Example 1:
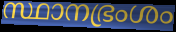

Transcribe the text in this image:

സ്ഥാനഭ്രംശം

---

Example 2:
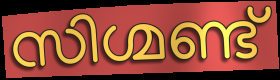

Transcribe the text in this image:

സിഗ്മണ്ട്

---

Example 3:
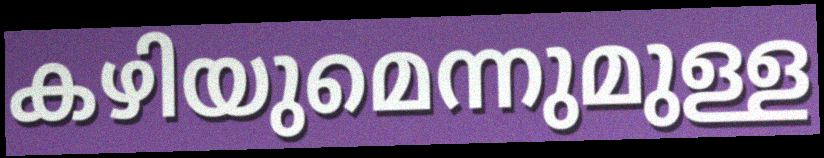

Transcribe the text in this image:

കഴിയുമെന്നുമുള്ള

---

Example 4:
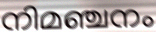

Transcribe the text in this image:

നിമഞ്ചനം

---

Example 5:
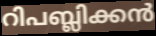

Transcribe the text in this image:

റിപബ്ലിക്കൻ